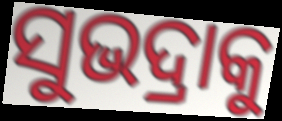
ସୁଭଦ୍ରାକୁ